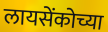
लायसेंकोच्या